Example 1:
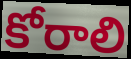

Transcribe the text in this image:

కోరాలి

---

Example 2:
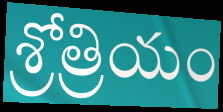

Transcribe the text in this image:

శ్రోత్రియం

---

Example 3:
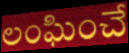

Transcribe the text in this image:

లంఘించే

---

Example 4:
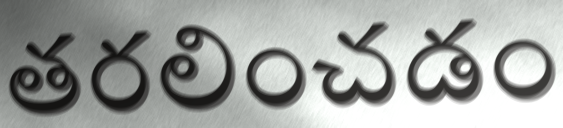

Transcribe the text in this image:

తరలించడం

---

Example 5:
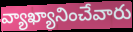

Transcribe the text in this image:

వ్యాఖ్యానించేవారు